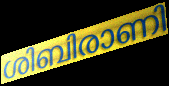
ശിബിരാണി